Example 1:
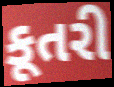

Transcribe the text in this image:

કૂતરી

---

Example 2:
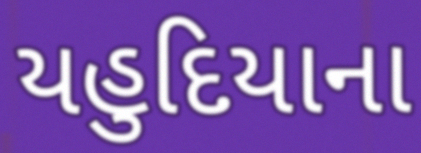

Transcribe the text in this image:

યહુદિયાના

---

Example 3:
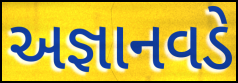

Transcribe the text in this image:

અજ્ઞાનવડે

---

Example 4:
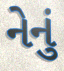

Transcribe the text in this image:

નેનું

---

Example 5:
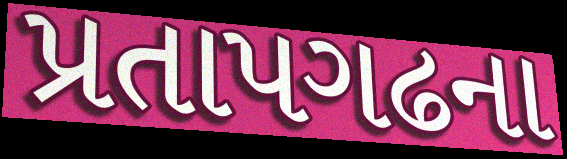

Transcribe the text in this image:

પ્રતાપગઢના